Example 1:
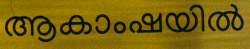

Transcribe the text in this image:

ആകാംഷയിൽ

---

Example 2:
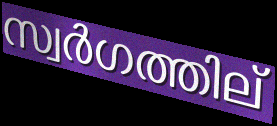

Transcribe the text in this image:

സ്വർഗത്തില്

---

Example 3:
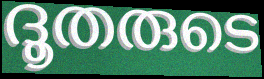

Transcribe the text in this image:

ദൂതരുടെ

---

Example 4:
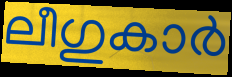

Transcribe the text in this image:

ലീഗുകാർ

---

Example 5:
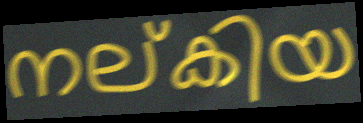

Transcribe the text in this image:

നല്കിയ